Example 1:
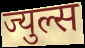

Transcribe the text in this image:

ज्युल्स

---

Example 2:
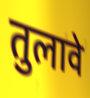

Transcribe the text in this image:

तुलावे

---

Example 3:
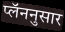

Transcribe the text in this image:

प्लॅननुसार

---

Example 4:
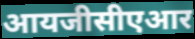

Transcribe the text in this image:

आयजीसीएआर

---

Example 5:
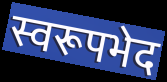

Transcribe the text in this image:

स्वरूपभेद